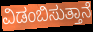
ವಿಡಂಬಿಸುತ್ತಾನೆ